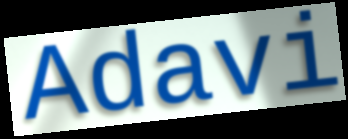
Adavi